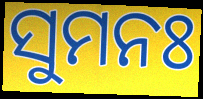
ସୁମନଃ